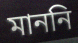
মাননি